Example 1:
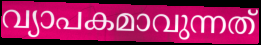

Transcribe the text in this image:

വ്യാപകമാവുന്നത്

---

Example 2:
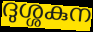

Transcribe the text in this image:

ദുശ്ശകുന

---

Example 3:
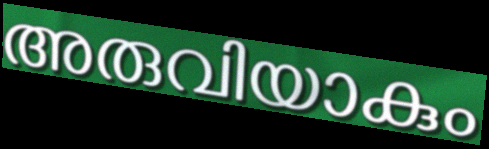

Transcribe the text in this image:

അരുവിയാകും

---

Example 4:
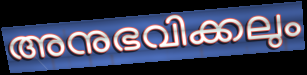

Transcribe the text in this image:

അനുഭവിക്കലും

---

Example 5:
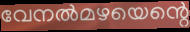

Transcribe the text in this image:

വേനൽമഴയെന്റെ